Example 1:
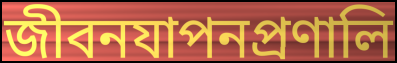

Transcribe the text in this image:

জীবনযাপনপ্রণালি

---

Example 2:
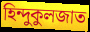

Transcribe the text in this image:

হিন্দুকুলজাত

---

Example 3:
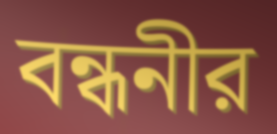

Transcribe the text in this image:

বন্ধনীর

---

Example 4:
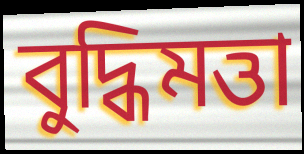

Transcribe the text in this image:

বুদ্ধিমত্তা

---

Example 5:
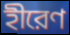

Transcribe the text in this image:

হীরেণ